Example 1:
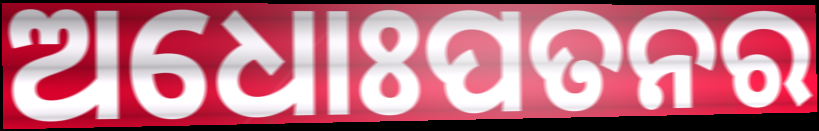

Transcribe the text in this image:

ଅଧୋଃପତନର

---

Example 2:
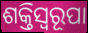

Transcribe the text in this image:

ଶକ୍ତିସ୍ବରୂପା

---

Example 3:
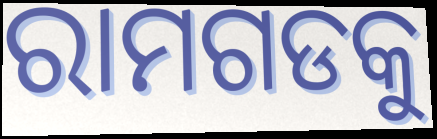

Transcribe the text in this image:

ରାମଗଡକୁ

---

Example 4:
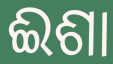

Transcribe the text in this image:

ଈଶା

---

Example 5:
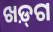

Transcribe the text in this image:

ଖଡ଼୍‌ଗ